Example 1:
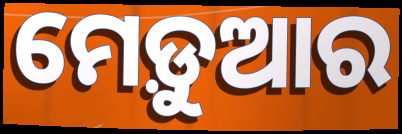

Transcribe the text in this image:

ମେଡ଼ୁଆର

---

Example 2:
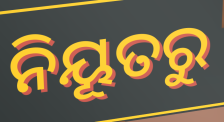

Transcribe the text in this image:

ନିୟୂତରୁ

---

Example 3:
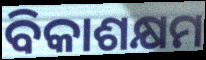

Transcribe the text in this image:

ବିକାଶକ୍ଷମ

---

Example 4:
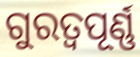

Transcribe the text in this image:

ଗୁରତ୍ୱପୂର୍ଣ୍ଣ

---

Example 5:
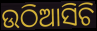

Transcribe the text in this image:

ଉଠିଆସିଚି